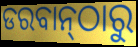
ଡରବାନ୍‌ଠାରୁ